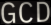
GCD